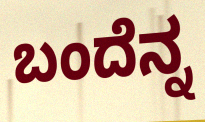
ಬಂದೆನ್ನ